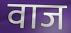
वाज